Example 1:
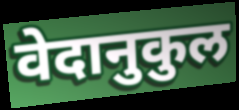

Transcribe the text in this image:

वेदानुकुल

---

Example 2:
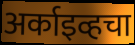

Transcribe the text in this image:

अर्काइव्हचा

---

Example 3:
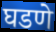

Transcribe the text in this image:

घडणे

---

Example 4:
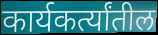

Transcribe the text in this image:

कार्यकर्त्यांतील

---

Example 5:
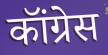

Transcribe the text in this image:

कॉंग्रेस